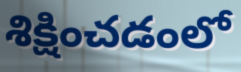
శిక్షించడంలో